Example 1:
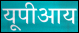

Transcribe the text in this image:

यूपीआय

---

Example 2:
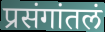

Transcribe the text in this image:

प्रसंगांतलं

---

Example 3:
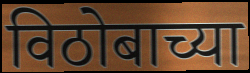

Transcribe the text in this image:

विठोबाच्या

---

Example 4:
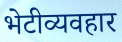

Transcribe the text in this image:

भेटीव्यवहार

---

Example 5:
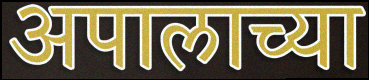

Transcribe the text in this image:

अपालाच्या